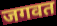
जगवत